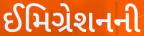
ઈમિગ્રેશનની